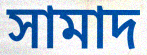
সামাদ